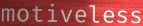
motiveless